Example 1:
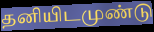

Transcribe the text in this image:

தனியிடமுண்டு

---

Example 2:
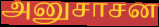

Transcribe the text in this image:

அனுசாசன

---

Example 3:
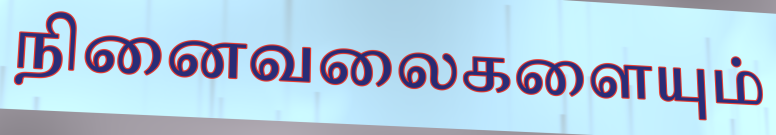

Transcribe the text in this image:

நினைவலைகளையும்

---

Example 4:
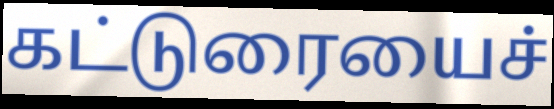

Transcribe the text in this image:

கட்டுரையைச்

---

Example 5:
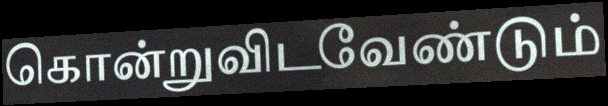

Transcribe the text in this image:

கொன்றுவிடவேண்டும்